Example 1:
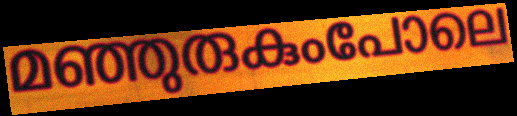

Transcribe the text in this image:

മഞ്ഞുരുകുംപോലെ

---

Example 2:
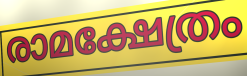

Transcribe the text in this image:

രാമക്ഷേത്രം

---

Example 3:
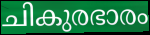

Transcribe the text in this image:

ചികുരഭാരം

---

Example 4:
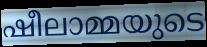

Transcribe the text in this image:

ഷീലാമ്മയുടെ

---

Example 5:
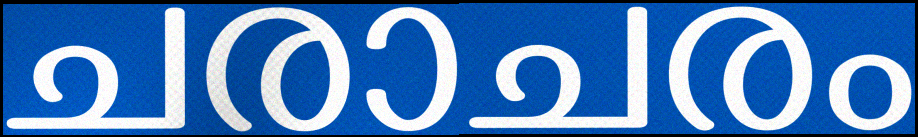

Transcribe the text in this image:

ചരാചരം